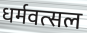
धर्मवत्सल